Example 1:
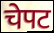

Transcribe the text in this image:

चेपट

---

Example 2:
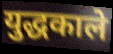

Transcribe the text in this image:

युद्धकाले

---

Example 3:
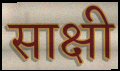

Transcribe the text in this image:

साक्षी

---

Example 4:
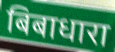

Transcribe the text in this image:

बिबाधारा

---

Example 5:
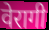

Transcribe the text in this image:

वेरागी